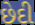
છેદી